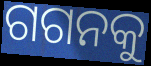
ଗଗନକୁ